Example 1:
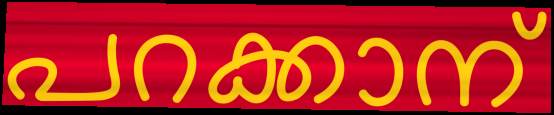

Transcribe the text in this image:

പറക്കാന്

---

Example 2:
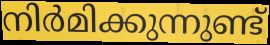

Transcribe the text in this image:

നിർമിക്കുന്നുണ്ട്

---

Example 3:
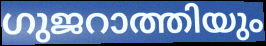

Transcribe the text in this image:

ഗുജറാത്തിയും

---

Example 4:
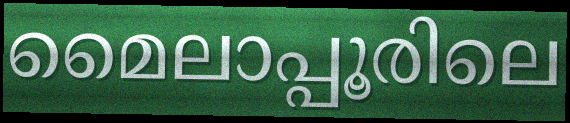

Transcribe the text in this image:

മൈലാപ്പൂരിലെ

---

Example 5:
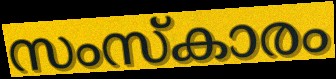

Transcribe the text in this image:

സംസ്കാരം